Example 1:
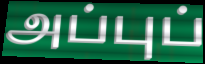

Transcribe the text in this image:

அப்புப்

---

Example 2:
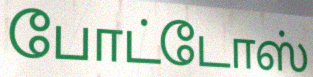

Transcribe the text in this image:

போட்டோஸ்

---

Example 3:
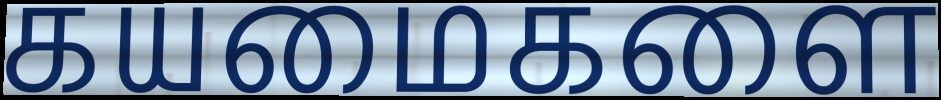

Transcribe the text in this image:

கயமைகளை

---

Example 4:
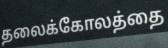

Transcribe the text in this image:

தலைக்கோலத்தை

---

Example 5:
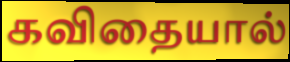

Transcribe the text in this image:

கவிதையால்